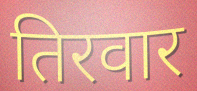
तिरवार